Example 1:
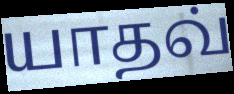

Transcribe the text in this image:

யாதவ்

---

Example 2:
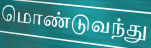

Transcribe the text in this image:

மொண்டுவந்து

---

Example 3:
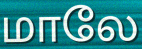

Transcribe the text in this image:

மாலே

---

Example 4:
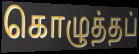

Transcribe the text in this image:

கொழுத்தப்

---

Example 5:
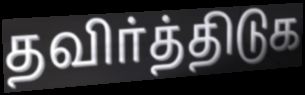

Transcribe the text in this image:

தவிர்த்திடுக